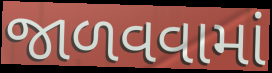
જાળવવામાં